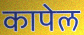
कापेल